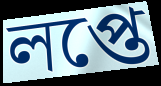
লপ্তে